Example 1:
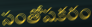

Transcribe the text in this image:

సంతోషకరం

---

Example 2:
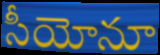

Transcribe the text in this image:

సీయోనూ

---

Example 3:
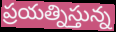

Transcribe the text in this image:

ప్రయత్నిస్తున్న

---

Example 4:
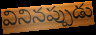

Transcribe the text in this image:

వినినప్పుడు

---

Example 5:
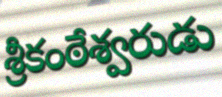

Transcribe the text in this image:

శ్రీకంఠేశ్వరుడు